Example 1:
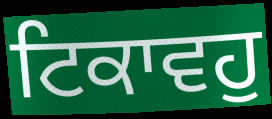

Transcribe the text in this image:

ਟਿਕਾਵਹੁ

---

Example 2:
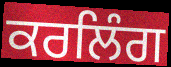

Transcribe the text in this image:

ਕਰਲਿੰਗ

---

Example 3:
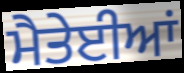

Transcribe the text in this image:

ਮੈਤੇਈਆਂ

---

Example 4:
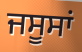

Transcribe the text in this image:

ਜਸੂਸਾਂ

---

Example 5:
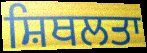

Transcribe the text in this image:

ਸ਼ਿਥਲਤਾ